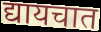
द्यायचात